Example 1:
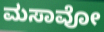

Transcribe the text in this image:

ಮಸಾವೋ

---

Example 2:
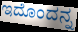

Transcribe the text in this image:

ಇದೊಂದನ್ನ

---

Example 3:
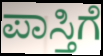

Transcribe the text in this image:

ಪಾಸ್ತಿಗೆ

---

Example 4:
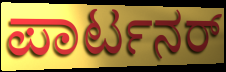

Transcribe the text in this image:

ಪಾರ್ಟನರ್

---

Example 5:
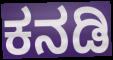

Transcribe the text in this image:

ಕನಡಿ